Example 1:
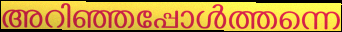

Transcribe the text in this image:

അറിഞ്ഞപ്പോൾത്തന്നെ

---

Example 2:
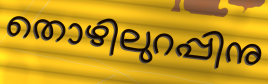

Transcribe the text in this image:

തൊഴിലുറപ്പിനു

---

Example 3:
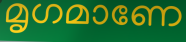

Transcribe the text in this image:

മൃഗമാണേ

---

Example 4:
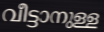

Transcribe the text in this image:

വീട്ടാനുള്ള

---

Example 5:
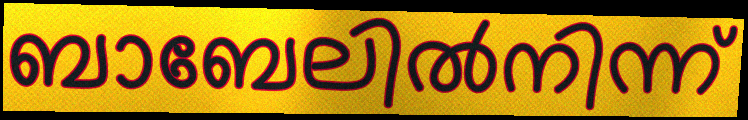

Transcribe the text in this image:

ബാബേലിൽനിന്ന്